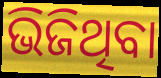
ଭିଜିଥିବା